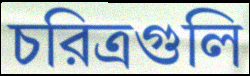
চরিত্রগুলি